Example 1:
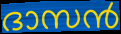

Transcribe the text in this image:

ദാസൻ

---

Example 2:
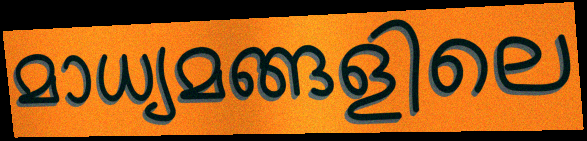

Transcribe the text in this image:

മാധ്യമങ്ങളിലെ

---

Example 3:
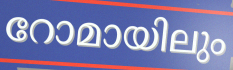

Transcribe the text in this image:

റോമായിലും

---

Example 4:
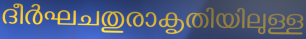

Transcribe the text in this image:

ദീർഘചതുരാകൃതിയിലുള്ള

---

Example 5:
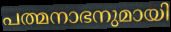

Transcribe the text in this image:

പത്മനാഭനുമായി